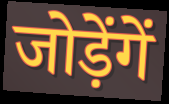
जोड़ेंगें